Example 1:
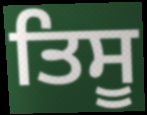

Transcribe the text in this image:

ਤਿਸੂ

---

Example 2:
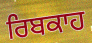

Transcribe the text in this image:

ਰਿਬਕਾਹ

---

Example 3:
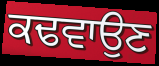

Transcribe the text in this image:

ਕਢਵਾਉਣ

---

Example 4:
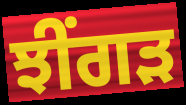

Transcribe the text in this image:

ਝੀਂਗੜ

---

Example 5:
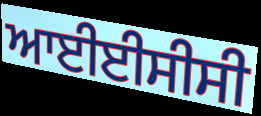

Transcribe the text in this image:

ਆਈਈਸੀਸੀ